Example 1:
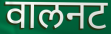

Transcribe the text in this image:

वालनट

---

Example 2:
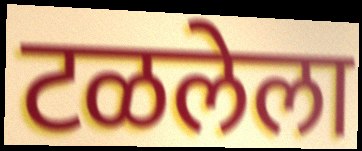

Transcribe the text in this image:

टळलेला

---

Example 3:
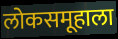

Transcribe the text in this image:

लोकसमूहाला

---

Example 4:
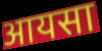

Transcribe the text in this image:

आयसा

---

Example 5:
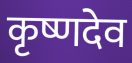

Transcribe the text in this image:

कृष्णदेव